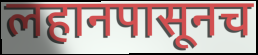
लहानपासूनच